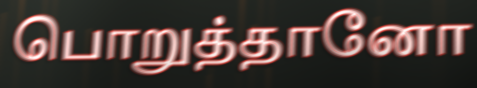
பொறுத்தானோ